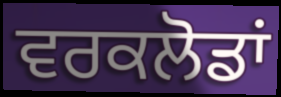
ਵਰਕਲੋਡਾਂ